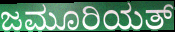
ಜಮೂರಿಯತ್